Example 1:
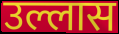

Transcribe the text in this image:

उल्‍लास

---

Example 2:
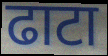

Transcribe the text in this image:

ढाटा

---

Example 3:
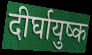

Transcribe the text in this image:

दीर्घायुष्क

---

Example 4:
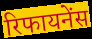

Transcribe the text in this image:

रिफायनेंस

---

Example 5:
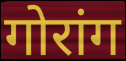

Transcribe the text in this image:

गोरांग